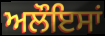
ਅਲੌਇਸਾਂ